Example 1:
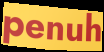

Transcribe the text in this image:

penuh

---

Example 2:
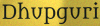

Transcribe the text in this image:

Dhupguri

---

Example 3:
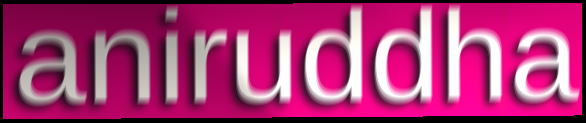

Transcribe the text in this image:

aniruddha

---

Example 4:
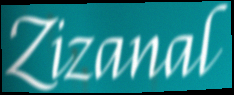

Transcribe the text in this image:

Zizanal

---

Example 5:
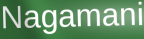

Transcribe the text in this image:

Nagamani